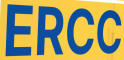
ERCC